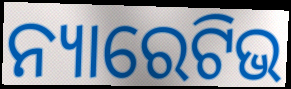
ନ୍ୟାରେଟିଭ